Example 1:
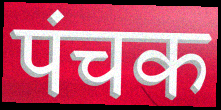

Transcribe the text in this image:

पंचक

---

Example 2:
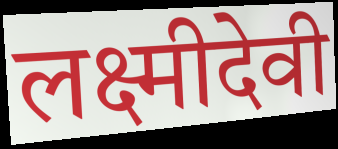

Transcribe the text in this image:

लक्ष्मीदेवी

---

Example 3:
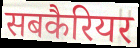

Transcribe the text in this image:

सबकैरियर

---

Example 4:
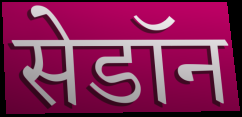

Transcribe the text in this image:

सेडॉन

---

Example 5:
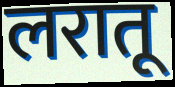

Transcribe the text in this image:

लरातू